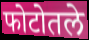
फोटोतले